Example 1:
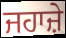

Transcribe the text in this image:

ਜਹਾਜ਼ੇ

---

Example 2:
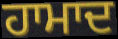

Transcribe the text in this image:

ਹਾਮਾਦ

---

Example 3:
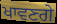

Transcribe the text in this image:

ਖਾਵਣਗੇ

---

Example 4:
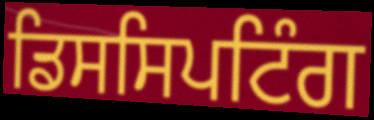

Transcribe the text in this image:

ਡਿਸਸਿਪਟਿੰਗ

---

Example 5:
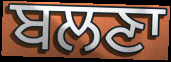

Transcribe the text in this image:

ਬਲਣਾ